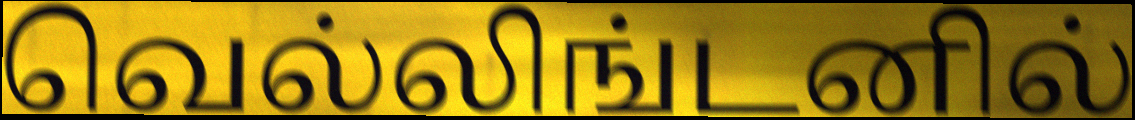
வெல்லிங்டனில்